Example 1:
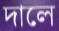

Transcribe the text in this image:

দালে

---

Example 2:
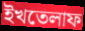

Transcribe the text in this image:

ইখতেলাফ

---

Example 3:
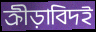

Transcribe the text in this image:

ক্রীড়াবিদই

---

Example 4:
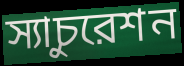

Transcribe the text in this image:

স্যাচুরেশন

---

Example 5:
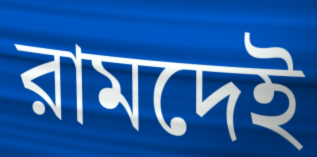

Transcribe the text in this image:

রামদেই